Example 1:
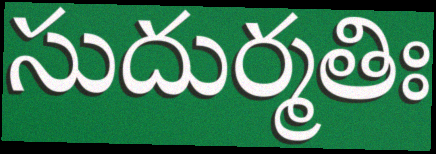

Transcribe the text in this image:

సుదుర్మతిః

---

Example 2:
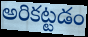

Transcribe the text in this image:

అరికట్టడం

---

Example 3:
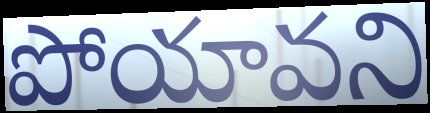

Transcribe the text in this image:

పోయావని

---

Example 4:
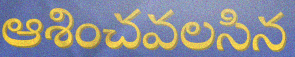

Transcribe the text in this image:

ఆశించవలసిన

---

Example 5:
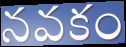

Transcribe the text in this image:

నవకం